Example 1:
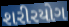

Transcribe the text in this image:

શરીરયોગ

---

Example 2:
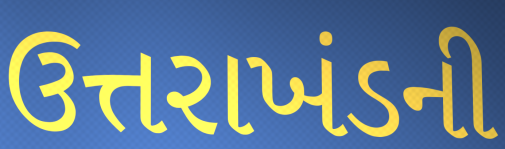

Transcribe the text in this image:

ઉત્તરાખંડની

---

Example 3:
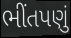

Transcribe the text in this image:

ભીંતપણું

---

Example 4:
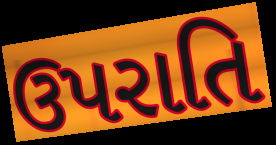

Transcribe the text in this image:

ઉપરાતિ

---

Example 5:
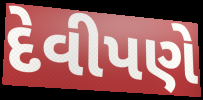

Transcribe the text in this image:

દેવીપણે